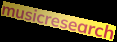
musicresearch